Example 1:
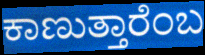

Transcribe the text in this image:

ಕಾಣುತ್ತಾರೆಂಬ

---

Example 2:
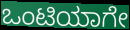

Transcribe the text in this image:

ಒಂಟಿಯಾಗೇ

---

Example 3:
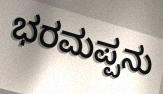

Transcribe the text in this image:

ಭರಮಪ್ಪನು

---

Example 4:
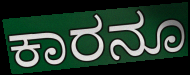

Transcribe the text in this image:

ಕಾರನೂ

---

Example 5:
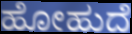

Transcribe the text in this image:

ಹೋಹುದೆ